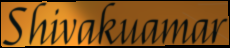
Shivakuamar